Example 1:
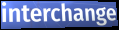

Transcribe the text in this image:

interchange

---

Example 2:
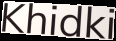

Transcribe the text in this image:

Khidki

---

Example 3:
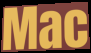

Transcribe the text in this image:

Mac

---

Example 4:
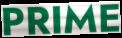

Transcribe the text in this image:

PRIME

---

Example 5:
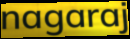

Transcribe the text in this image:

nagaraj